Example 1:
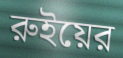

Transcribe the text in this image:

রুইয়ের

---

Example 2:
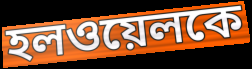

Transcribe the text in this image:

হলওয়েলকে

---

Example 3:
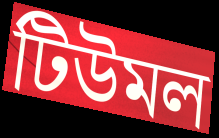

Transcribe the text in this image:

টিউমল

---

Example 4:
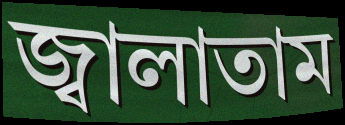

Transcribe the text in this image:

জ্বালাতাম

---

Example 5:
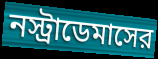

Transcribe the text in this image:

নস্ট্রাডেমাসের